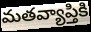
మతవ్యాప్తికి